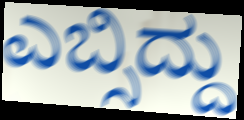
ಎಬ್ಸಿದ್ದು